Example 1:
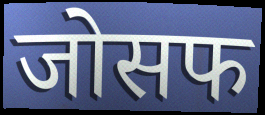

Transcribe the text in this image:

जोसफ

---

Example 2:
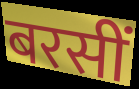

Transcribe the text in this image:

बरसीं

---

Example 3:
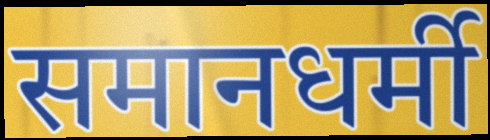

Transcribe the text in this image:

समानधर्मी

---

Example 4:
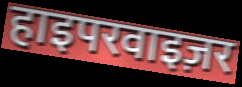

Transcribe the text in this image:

हाइपरवाइज़र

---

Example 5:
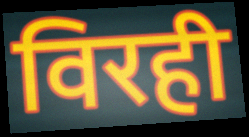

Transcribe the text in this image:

विरही